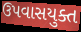
ઉપવાસયુક્ત